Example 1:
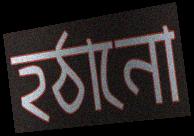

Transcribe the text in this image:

হঠানো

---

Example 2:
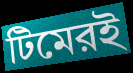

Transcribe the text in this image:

টিমেরই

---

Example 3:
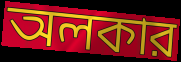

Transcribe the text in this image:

অলকার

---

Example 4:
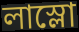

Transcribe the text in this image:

লাস্লো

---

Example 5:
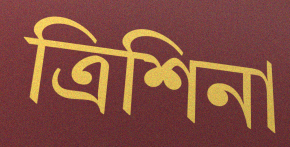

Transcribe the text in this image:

ত্রিশিনা